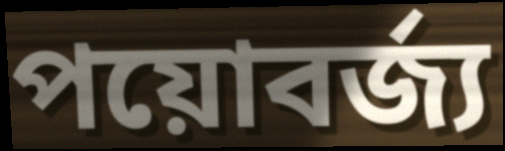
পয়োবর্জ্য